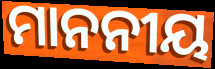
ମାନନୀୟ